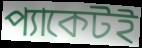
প্যাকেটই